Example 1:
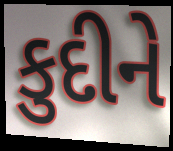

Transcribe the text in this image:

કુદીને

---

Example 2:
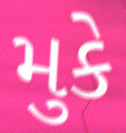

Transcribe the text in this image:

મુકે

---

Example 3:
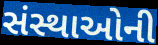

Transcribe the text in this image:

સંસ્થાઓની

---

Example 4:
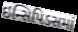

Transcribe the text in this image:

ઇન્સિપિડસમાં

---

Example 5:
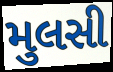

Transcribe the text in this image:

મુલસી